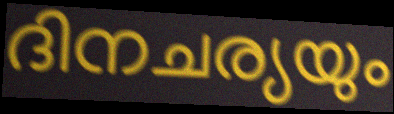
ദിനചര്യയും